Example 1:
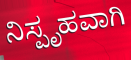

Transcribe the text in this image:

ನಿಸ್ಪೃಹವಾಗಿ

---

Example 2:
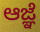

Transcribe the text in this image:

ಆಜ್ಞೆ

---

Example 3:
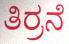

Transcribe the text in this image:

ತಿರ್ರನೆ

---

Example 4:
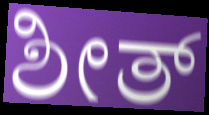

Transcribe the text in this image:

ಶೀತ್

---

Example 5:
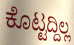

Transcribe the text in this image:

ಕೊಟ್ಟದ್ದಿಲ್ಲ